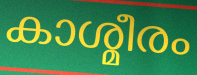
കാശ്മീരം